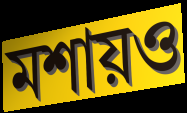
মশায়ও